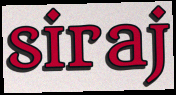
siraj